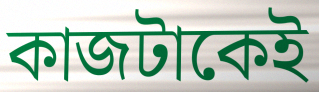
কাজটাকেই